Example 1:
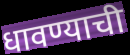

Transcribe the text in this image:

धावण्याची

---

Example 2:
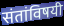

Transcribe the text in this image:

संतांविषयी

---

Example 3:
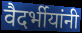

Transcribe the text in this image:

वैदर्भीयांनी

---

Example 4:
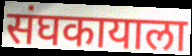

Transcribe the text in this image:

संघकायाला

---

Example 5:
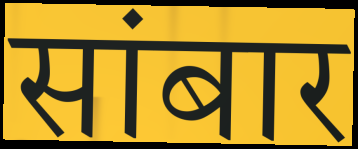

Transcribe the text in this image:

सांबार